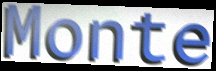
Monte